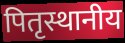
पितृस्थानीय